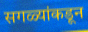
सगळ्यांकडून